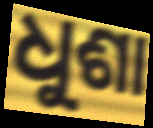
ଧୁଶା